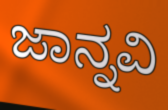
ಜಾನ್ನವಿ